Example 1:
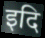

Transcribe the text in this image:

इदि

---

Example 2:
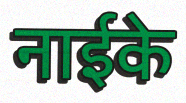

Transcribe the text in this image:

नाईके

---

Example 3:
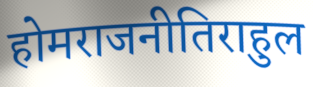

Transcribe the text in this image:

होमराजनीतिराहुल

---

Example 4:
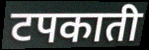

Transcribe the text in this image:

टपकाती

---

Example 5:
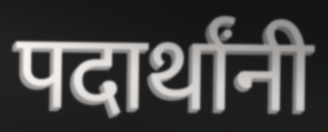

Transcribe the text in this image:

पदार्थांनी